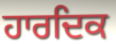
ਹਾਰਦਿਕ